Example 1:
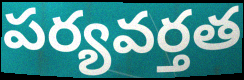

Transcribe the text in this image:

పర్యవర్తత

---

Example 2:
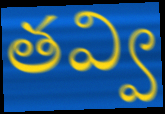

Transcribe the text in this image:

తవ్వి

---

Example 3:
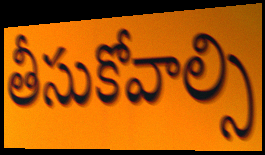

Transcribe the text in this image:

తీసుకోవాల్సి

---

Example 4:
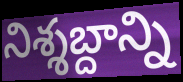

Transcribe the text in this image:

నిశ్శబ్దాన్ని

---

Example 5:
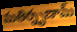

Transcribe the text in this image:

మతిర్నృణామ్